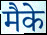
मैके